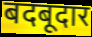
बदबूदार